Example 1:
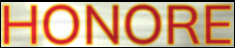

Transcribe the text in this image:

HONORE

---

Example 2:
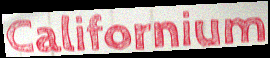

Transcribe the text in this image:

Californium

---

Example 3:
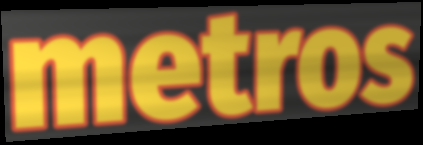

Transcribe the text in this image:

metros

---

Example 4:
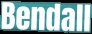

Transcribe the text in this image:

Bendall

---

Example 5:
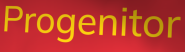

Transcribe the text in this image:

Progenitor